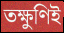
তক্ষুণিই